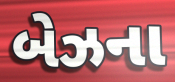
બેઝના